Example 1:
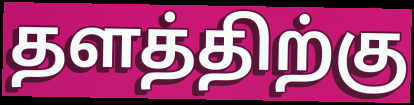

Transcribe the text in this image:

தளத்திற்கு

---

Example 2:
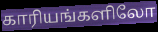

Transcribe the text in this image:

காரியங்களிலோ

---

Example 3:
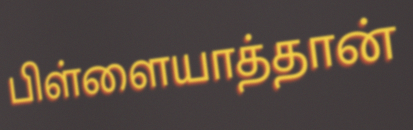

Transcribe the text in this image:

பிள்ளையாத்தான்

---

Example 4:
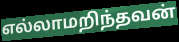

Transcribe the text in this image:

எல்லாமறிந்தவன்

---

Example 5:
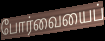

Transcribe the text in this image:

போர்வையைப்